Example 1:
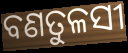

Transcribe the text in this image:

ବଣତୁଳସୀ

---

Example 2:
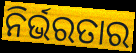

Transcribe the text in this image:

ନିର୍ଭରତାର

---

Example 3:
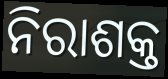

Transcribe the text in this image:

ନିରାଶକ୍ତ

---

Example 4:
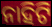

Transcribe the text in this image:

ନାହିଟି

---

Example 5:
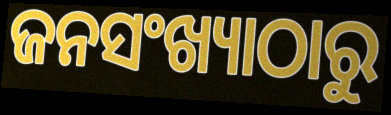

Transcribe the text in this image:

ଜନସଂଖ୍ୟାଠାରୁ